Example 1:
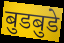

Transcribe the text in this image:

बुडबुडे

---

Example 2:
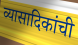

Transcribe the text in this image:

व्यासादिकांची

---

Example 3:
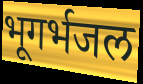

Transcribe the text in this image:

भूगर्भजल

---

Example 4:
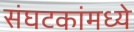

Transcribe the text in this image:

संघटकांमध्ये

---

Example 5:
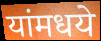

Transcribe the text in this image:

यांमधये